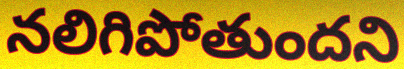
నలిగిపోతుందని